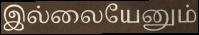
இல்லையேனும்